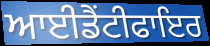
ਆਈਡੈਂਟੀਫਾਇਰ